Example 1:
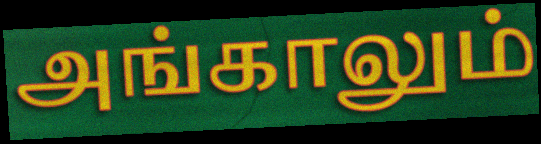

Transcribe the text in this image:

அங்காலும்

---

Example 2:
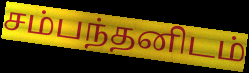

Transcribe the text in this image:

சம்பந்தனிடம்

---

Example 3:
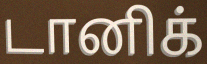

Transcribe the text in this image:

டானிக்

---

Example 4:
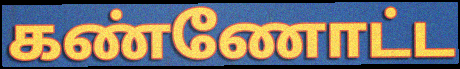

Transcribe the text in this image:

கண்ணோட்ட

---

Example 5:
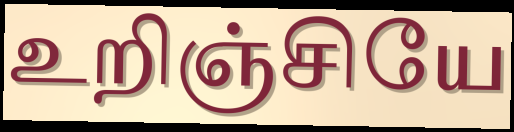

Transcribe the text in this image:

உறிஞ்சியே